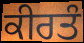
ਕੀਰਤੰ